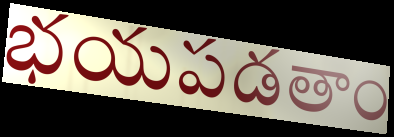
భయపడతాం